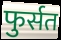
फुर्सत